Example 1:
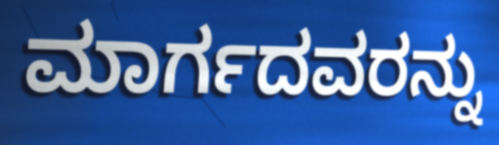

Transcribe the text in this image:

ಮಾರ್ಗದವರನ್ನು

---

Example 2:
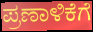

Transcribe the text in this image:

ಪ್ರಣಾಳಿಕೆಗೆ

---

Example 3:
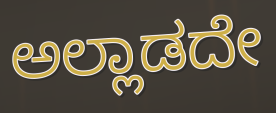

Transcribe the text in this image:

ಅಲ್ಲಾಡದೇ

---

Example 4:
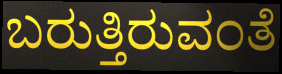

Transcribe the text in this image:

ಬರುತ್ತಿರುವಂತೆ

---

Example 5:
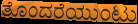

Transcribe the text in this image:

ತೊಂದರೆಯುಂಟು